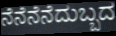
ನೆನೆನೆನೆದುಬ್ಬದ